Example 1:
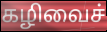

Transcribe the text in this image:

கழிவைச்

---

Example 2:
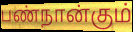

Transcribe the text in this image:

பண்நான்கும்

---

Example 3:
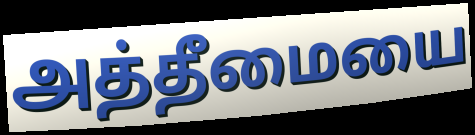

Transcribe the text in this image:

அத்தீமையை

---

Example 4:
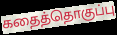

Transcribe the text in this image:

கதைத்தொகுப்பு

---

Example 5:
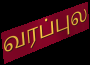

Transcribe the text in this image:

வரப்புல